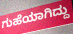
ಗುಹೆಯಾಗಿದ್ದು